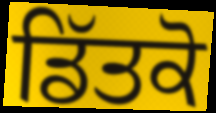
ਡਿੱਤਕੋ